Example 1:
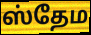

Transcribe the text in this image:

ஸ்தேம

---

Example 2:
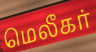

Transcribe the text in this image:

மெலீகர்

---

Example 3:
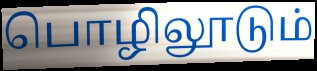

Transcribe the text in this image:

பொழிலூடும்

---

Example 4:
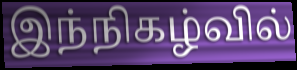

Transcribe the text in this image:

இந்நிகழ்வில்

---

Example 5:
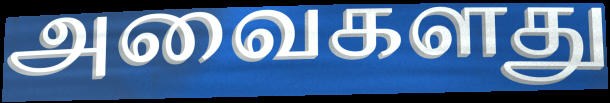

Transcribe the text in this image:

அவைகளது